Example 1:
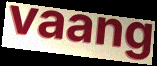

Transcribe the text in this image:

vaang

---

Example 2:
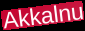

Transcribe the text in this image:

Akkalnu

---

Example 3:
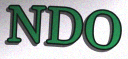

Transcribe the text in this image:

NDO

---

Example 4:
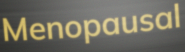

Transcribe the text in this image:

Menopausal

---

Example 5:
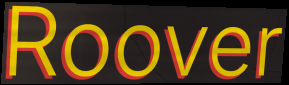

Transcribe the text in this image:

Roover